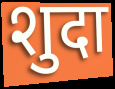
शुदा